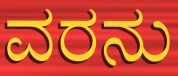
ವರನು